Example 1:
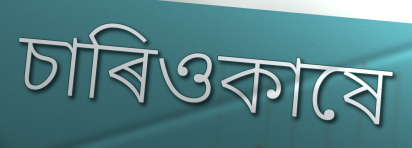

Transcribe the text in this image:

চাৰিওকাষে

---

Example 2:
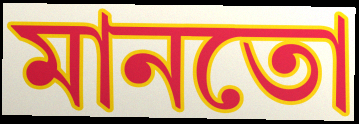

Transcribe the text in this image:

মানতো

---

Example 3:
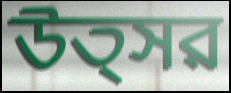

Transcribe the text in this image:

উত্সৱ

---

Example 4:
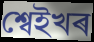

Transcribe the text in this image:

শ্বেইখৰ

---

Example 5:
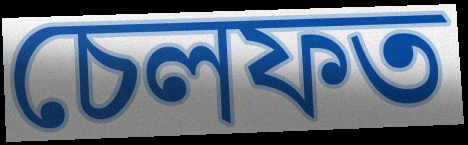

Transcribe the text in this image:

চেলফত